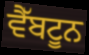
ਵੈੱਬਟੂਨ